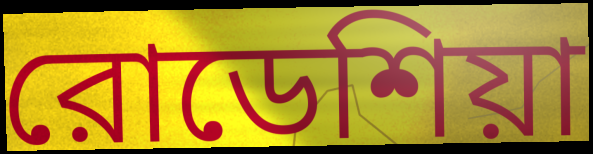
রোডেশিয়া